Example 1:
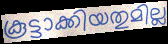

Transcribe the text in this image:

കൂട്ടാക്കിയതുമില്ല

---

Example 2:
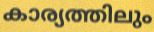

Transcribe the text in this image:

കാര്യത്തിലും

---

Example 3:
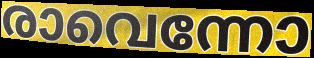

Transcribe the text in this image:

രാവെന്നോ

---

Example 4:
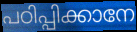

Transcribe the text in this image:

പഠിപ്പിക്കാനേ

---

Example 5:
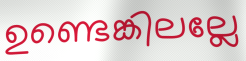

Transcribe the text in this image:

ഉണ്ടെങ്കിലല്ലേ